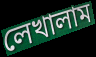
লেখালাম